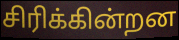
சிரிக்கின்றன